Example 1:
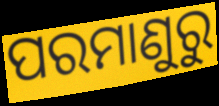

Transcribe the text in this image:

ପରମାଣୁରୁ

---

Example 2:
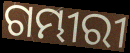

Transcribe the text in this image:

ଗମ୍ଭୀରୀ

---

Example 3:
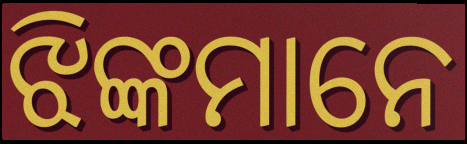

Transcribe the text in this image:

ଝିଙ୍କମାନେ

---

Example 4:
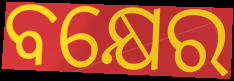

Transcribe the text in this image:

ବକ୍ଷେର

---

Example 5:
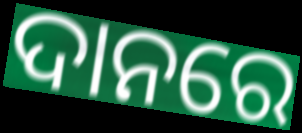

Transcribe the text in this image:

ଦାନରେ